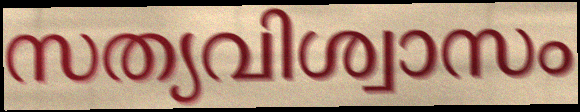
സത്യവിശ്വാസം